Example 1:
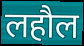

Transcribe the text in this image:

लहौल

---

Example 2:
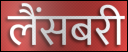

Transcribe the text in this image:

लैंसबरी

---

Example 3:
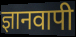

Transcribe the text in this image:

ज्ञानवापी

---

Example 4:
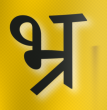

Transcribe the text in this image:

भ्र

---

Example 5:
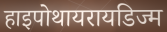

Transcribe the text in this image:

हाइपोथायरायडिज्म